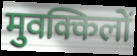
मुवक्किलों